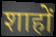
शाहों